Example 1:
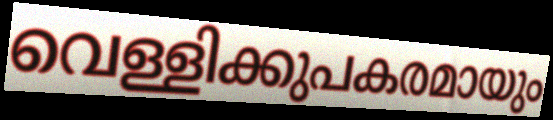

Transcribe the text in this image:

വെള്ളിക്കുപകരമായും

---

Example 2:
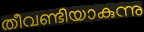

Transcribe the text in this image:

തീവണ്ടിയാകുന്നു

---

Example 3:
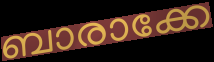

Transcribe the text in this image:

ബാരാക്കേ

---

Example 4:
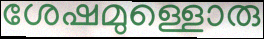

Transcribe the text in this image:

ശേഷമുള്ളൊരു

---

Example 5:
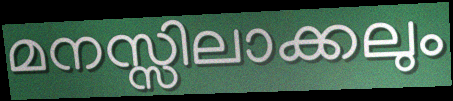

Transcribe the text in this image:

മനസ്സിലാക്കലും